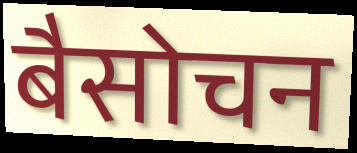
बैसोचन